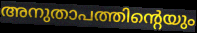
അനുതാപത്തിന്റെയും